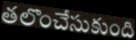
తలొంచేసుకుంది